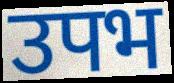
उपभ